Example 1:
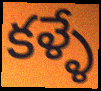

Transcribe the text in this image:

కళ్ళే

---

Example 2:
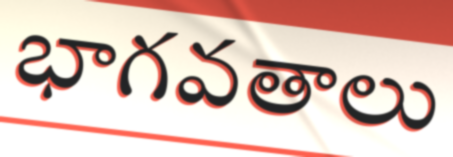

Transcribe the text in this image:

భాగవతాలు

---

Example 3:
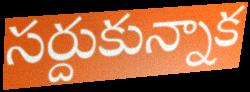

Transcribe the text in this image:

సర్దుకున్నాక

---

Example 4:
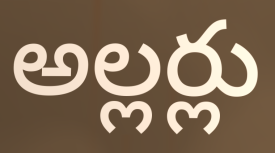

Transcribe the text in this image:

అల్లర్లు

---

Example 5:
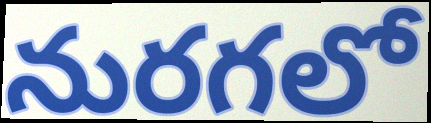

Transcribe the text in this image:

నురగలో